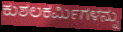
ಕುಶಲಕರ್ಮಿಗಳನ್ನು